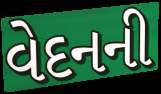
વેદનની